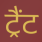
ट्रैंट